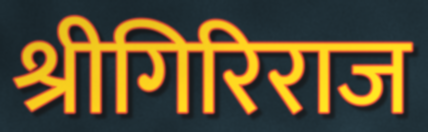
श्रीगिरिराज